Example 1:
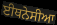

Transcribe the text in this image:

ਈਥਨੇਸੀਆ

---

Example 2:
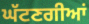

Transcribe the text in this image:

ਘੱਟਣਗੀਆਂ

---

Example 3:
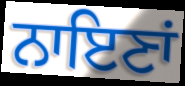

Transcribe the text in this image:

ਨਾਇਣਾਂ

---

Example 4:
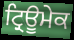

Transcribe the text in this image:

ਟ੍ਰਿਊਮੇਕ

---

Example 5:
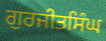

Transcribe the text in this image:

ਗੁਰਜੀਤਸਿੰਘ